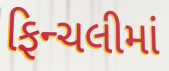
ફિન્ચલીમાં